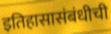
इतिहासासंबंधीची